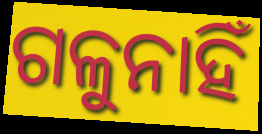
ଗଳୁନାହିଁ